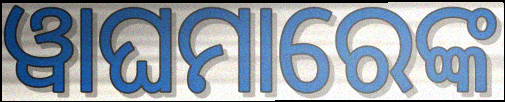
ୱାଘମାରେଙ୍କ